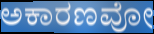
ಅಕಾರಣವೋ